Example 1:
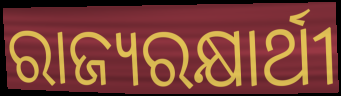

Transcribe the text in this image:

ରାଜ୍ୟରକ୍ଷାର୍ଥୀ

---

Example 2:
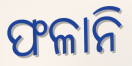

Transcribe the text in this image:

ଫଳାନି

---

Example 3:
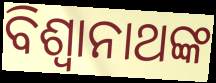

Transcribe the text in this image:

ବିଶ୍ୱାନାଥଙ୍କ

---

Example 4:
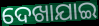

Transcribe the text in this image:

ଦେଖାଯାଇ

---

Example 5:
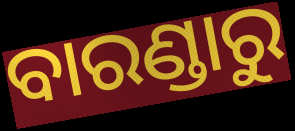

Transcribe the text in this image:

ବାରଣ୍ଡାରୁ